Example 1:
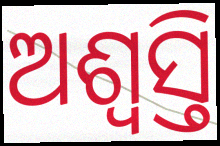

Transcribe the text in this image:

ଅଶ୍ୱସ୍ତି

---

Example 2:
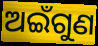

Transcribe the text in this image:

ଅଇଁଗୁଣ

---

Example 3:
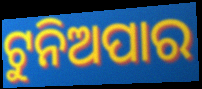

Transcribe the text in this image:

ଟୁନିଅପାର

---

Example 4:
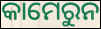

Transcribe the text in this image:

କାମେରୁନ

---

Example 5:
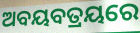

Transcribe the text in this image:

ଅବୟବତ୍ରୟରେ